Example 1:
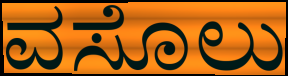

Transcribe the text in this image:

ವಸೊಲು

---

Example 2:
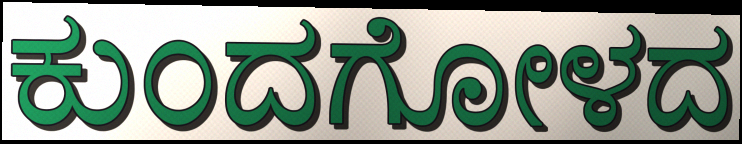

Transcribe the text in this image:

ಕುಂದಗೋಳದ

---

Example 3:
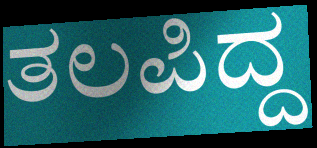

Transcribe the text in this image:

ತಲಪಿದ್ದ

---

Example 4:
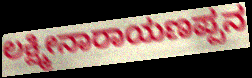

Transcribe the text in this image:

ಲಕ್ಷ್ಮೀನಾರಾಯಣಪ್ಪನ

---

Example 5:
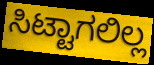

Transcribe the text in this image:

ಸಿಟ್ಟಾಗಲಿಲ್ಲ